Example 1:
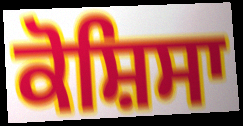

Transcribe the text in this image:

ਕੋਸ਼ਿਸਾ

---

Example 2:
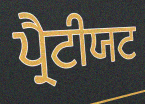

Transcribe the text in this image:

ਪ੍ਰੈਟੀਯਟ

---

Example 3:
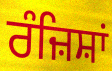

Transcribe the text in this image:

ਰੰਜ਼ਿਸ਼ਾਂ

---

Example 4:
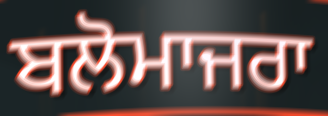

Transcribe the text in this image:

ਬਲੋਮਾਜਰਾ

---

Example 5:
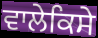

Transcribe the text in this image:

ਵਾਲੇਕਿਸੇ